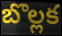
బొల్లక